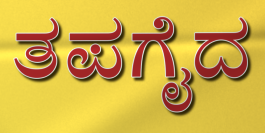
ತಪಗೈದ